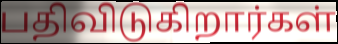
பதிவிடுகிறார்கள்